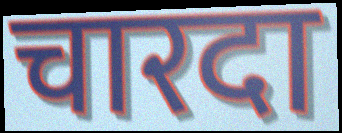
चारदा